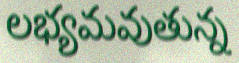
లభ్యమవుతున్న